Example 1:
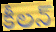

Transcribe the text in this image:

కీలన్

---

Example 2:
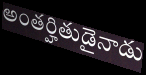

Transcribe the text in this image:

అంతర్హితుడైనాడు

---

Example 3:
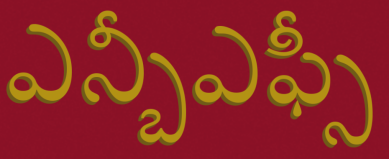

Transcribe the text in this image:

ఎన్బీఎఫ్సీ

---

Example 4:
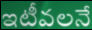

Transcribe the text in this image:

ఇటీవలనే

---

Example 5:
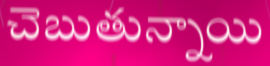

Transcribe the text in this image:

చెబుతున్నాయి